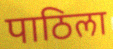
पाठिला